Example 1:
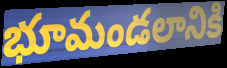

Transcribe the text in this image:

భూమండలానికి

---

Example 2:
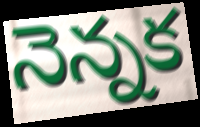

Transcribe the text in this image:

నెన్నక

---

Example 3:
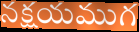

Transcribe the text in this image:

నక్షయముగ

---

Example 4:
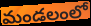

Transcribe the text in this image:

మండలంలో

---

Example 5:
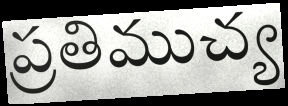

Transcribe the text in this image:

ప్రతిముచ్య